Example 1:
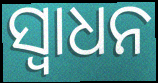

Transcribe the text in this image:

ସ୍ଵାଧନ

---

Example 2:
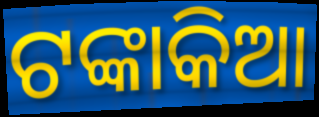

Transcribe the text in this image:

ଟଙ୍କାକିଆ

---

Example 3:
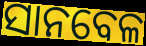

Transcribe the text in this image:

ସାନବେଳ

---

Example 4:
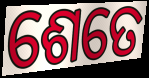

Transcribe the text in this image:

ଶେତେ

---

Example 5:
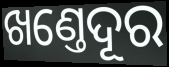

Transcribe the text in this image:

ଖଣ୍ତେଦୂର